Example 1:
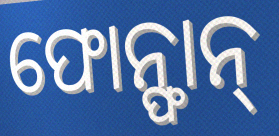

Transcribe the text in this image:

ଫୋନ୍ଫାନ୍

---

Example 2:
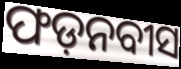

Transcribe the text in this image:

ଫଡ଼ନବୀସ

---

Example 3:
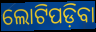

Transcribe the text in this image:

ଲୋଟିପଡ଼ିବା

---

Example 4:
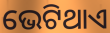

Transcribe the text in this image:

ଭେଟିଥାଏ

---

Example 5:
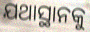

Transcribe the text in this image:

ଯଥାସ୍ଥାନକୁ